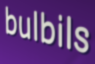
bulbils